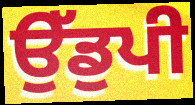
ਉੱਡੁਪੀ